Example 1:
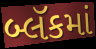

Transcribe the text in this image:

બ્લૅકમાં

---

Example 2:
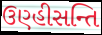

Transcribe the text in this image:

ઉણ્હીસન્તિ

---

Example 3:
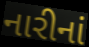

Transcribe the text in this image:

નારીનાં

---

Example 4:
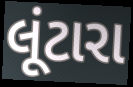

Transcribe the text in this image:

લૂંટારા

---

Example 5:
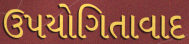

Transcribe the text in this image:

ઉપયોગિતાવાદ